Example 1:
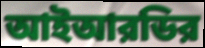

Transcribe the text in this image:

আইআরডির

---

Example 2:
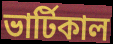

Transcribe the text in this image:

ভার্টিকাল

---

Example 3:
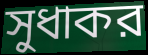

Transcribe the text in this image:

সুধাকর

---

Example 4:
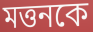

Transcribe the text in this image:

মত্তনকে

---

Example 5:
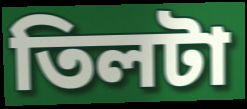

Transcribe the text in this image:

তিলটা